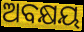
ଅବକ୍ଷୟ